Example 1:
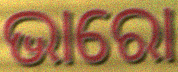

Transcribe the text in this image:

ଭାରୋ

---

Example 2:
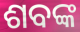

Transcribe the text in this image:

ଶବଙ୍କ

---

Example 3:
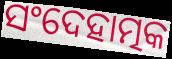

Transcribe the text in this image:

ସଂଦେହାତ୍ମକ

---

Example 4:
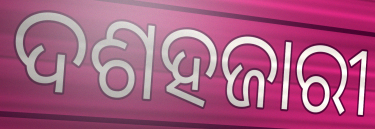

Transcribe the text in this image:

ଦଶହଜାରୀ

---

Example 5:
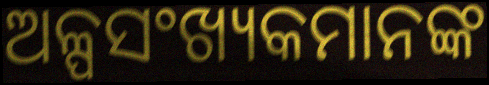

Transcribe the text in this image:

ଅଳ୍ପସଂଖ୍ୟକମାନଙ୍କ